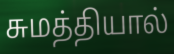
சுமத்தியால்